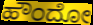
ಹೌಂದೋ